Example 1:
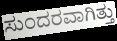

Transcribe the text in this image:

ಸುಂದರವಾಗಿತ್ತು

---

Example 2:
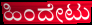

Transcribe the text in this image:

ಹಿಂದೇಟು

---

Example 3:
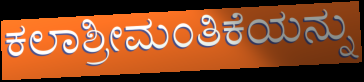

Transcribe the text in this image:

ಕಲಾಶ್ರೀಮಂತಿಕೆಯನ್ನು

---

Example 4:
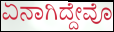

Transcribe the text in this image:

ಏನಾಗಿದ್ದೇವೊ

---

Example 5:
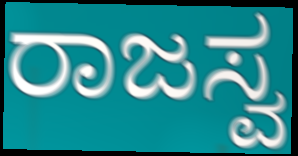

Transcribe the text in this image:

ರಾಜಸ್ವ